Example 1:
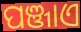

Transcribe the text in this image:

ପଞ୍ଜାଏ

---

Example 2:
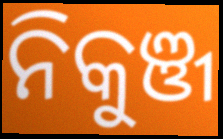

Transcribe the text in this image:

ନିକୁଞ୍ଜ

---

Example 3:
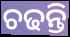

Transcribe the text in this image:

ଚଢନ୍ତି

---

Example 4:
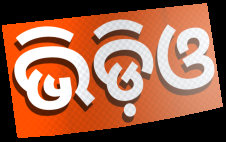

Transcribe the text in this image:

ଭିଡ଼ିଓ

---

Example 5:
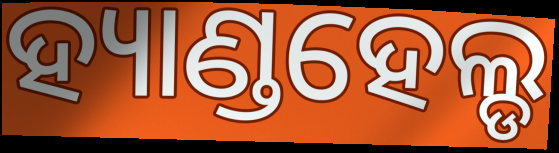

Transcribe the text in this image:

ହ୍ୟାଣ୍ଡହେଲ୍ଡ